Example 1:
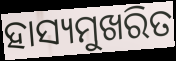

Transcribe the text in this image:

ହାସ୍ୟମୁଖରିତ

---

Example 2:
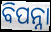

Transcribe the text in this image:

ବିପନ୍ନା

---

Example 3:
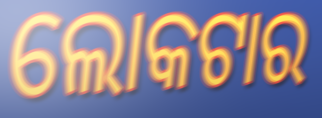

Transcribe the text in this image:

ଲୋକଟାର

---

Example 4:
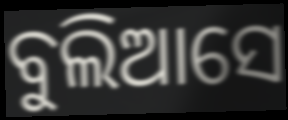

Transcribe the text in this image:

ବୁଲିଆସେ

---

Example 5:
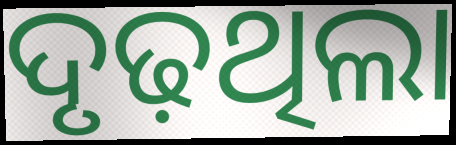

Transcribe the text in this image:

ଦୃଢ଼ଥିଲା